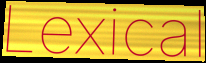
Lexical